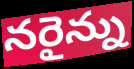
నరైన్ను